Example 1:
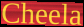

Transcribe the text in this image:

Cheela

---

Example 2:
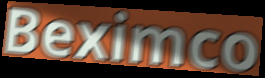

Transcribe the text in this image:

Beximco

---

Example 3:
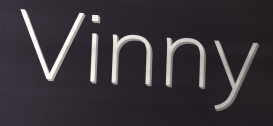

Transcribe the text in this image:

Vinny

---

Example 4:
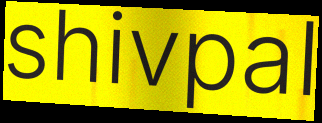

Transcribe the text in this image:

shivpal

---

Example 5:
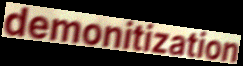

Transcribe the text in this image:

demonitization